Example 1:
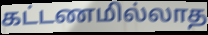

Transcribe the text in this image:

கட்டணமில்லாத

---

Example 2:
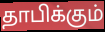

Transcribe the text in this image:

தாபிக்கும்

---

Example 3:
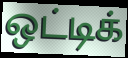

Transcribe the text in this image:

ஒட்டிக்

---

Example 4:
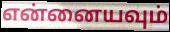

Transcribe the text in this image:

என்னையவும்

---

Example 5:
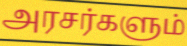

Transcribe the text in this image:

அரசர்களும்